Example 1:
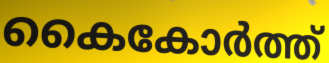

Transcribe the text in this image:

കൈകോർത്ത്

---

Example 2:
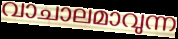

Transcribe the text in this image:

വാചാലമാവുന്ന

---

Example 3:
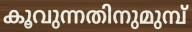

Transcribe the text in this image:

കൂവുന്നതിനുമുമ്പ്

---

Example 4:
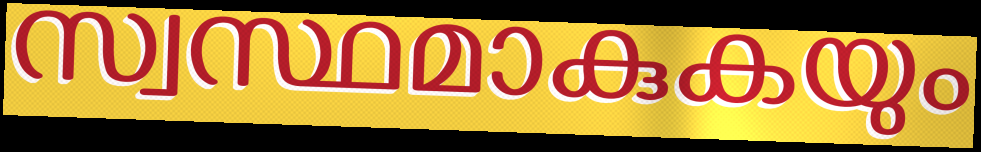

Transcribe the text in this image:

സ്വസ്ഥമാകുകയും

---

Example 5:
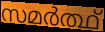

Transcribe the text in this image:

സമർത്ഥ്